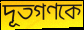
দূতগণকে